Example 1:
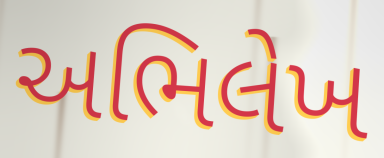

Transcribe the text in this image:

અભિલેખ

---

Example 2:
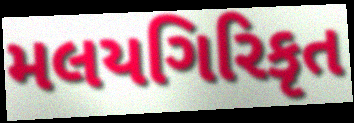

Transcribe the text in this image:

મલયગિરિકૃત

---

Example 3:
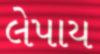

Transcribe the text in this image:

લેપાય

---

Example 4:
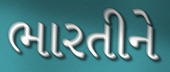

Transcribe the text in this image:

ભારતીને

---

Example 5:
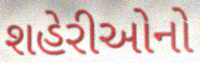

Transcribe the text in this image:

શહેરીઓનો